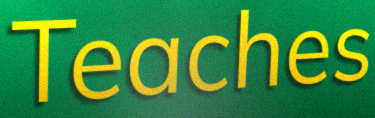
Teaches